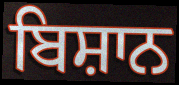
ਬਿਸ਼ਾਨ